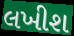
લખીશ